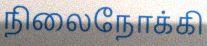
நிலைநோக்கி